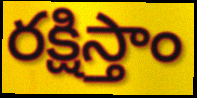
రక్షిస్తాం